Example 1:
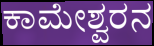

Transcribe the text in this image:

ಕಾಮೇಶ್ವರನ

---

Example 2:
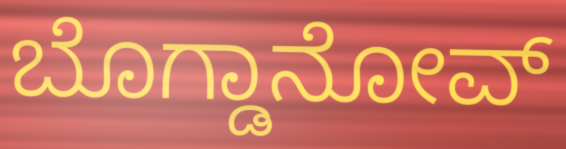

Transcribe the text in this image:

ಬೊಗ್ಡಾನೋವ್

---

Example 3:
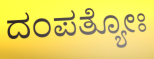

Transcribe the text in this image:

ದಂಪತ್ಯೋಃ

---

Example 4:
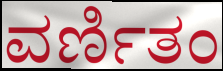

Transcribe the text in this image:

ವರ್ಣಿತಂ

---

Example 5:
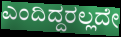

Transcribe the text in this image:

ಎಂದಿದ್ದರಲ್ಲದೇ